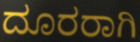
ದೂರರಾಗಿ